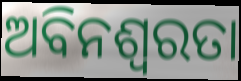
ଅବିନଶ୍ୱରତା